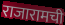
राजारामची